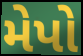
મેપો